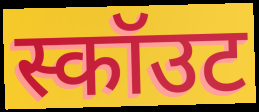
स्कॉउट